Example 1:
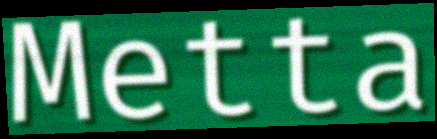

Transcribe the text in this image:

Metta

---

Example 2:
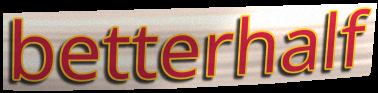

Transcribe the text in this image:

betterhalf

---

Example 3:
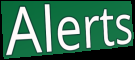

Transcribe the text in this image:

Alerts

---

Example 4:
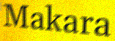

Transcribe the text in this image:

Makara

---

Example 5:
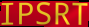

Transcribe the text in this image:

IPSRT